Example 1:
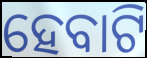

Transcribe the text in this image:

ହେବାଟି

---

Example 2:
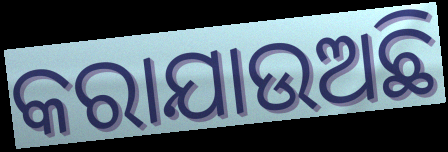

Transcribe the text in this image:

କରାଯାଉଅଛି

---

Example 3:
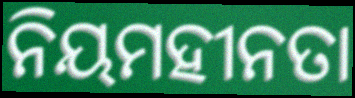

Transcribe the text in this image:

ନିୟମହୀନତା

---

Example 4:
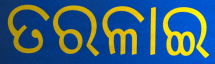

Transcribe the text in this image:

ତରଳାଇ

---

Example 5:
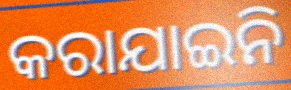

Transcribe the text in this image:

କରାଯାଇନି